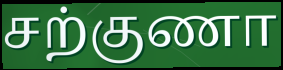
சற்குணா